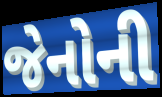
જેનોની